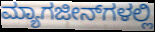
ಮ್ಯಾಗಜೀನ್‌ಗಳಲ್ಲಿ